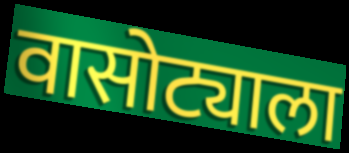
वासोट्याला